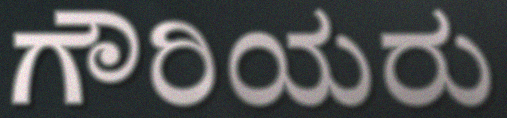
ಗೌರಿಯರು